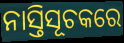
ନାସ୍ତିସୂଚକରେ